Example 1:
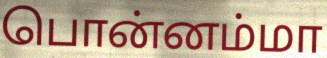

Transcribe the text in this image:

பொன்னம்மா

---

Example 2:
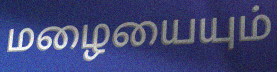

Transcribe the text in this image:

மழையையும்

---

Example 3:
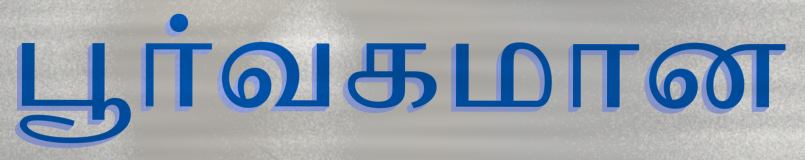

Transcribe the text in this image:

பூர்வகமான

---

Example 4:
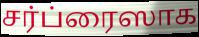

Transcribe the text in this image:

சர்ப்ரைஸாக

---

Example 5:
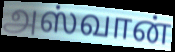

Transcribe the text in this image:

அஸ்வான்